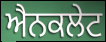
ਐਨਕਲੇਟ